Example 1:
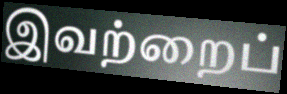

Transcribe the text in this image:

இவற்றைப்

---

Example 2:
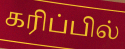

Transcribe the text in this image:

கரிப்பில்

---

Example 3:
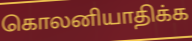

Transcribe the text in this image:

கொலனியாதிக்க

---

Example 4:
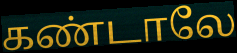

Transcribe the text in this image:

கண்டாலே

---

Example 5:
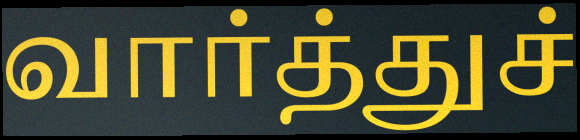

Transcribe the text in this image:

வார்த்துச்